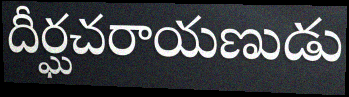
దీర్ఘచరాయణుడు